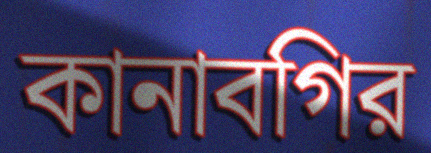
কানাবগির